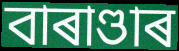
বাৰাণ্ডাৰ